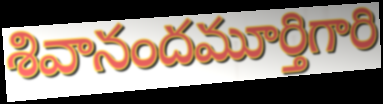
శివానందమూర్తిగారి